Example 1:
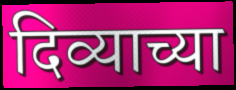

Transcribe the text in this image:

दिव्याच्या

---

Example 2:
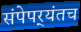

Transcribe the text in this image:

संपेपर्यंतच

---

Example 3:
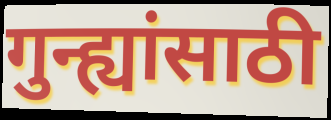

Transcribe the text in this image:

गुन्ह्यांसाठी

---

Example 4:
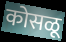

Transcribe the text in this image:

कोसळू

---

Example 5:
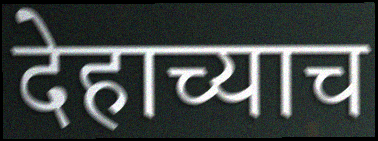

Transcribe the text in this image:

देहाच्याच